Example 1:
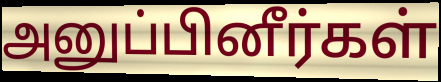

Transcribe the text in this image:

அனுப்பினீர்கள்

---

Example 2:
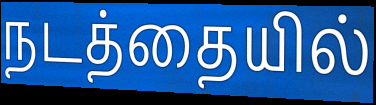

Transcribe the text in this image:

நடத்தையில்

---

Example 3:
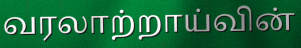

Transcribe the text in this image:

வரலாற்றாய்வின்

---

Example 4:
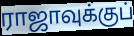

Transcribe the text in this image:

ராஜாவுக்குப்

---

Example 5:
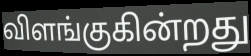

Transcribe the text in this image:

விளங்குகின்றது